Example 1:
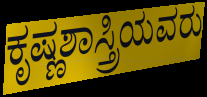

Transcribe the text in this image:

ಕೃಷ್ಣಶಾಸ್ತ್ರಿಯವರು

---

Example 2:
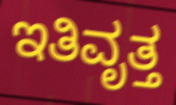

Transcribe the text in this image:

ಇತಿವೃತ್ತ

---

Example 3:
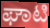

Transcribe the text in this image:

ಘಾಟಿ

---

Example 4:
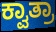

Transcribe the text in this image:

ಕ್ವಾತ್ರಾ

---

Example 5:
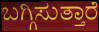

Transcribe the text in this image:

ಬಗ್ಗಿಸುತ್ತಾರೆ